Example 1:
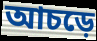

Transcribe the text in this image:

আচড়ে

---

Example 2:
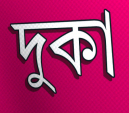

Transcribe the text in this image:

দুকা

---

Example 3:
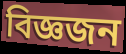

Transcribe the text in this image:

বিজ্ঞজন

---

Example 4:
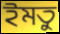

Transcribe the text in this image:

ইমতু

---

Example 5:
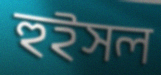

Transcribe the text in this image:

হুইসল